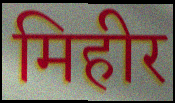
मिहीर